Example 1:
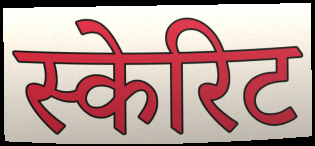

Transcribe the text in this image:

स्केरिट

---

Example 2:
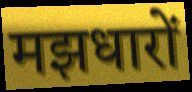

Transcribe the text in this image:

मझधारों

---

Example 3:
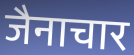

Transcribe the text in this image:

जैनाचार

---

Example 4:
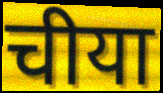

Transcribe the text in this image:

चीया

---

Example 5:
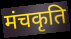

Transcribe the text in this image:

मंचकृति